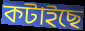
কটাইছে